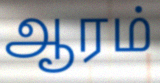
ஆரம்